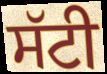
ਸੱਟੀ